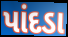
પાંદડા